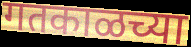
गतकाळच्या